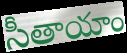
సీతాయాం